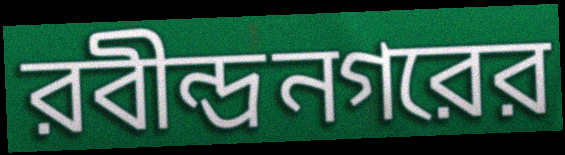
রবীন্দ্রনগরের